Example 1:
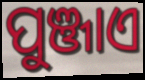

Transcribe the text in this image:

ପୁଞ୍ଜାଏ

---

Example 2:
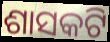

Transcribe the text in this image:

ଶାସକଟି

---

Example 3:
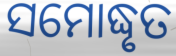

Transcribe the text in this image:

ସମୋଦ୍ଧୃତ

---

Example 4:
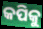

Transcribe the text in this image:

କପିକୁ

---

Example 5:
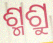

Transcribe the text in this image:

ଶ୍ମଶ୍ରୁ